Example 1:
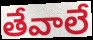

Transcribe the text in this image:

తేవాలే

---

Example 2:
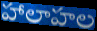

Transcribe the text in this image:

హాలాహల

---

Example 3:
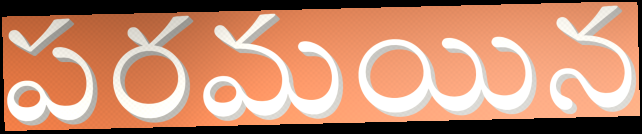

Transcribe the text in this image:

పరమయిన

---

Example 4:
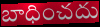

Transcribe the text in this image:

బాధించదు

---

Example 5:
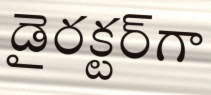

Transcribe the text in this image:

డైరక్టర్‌గా